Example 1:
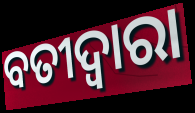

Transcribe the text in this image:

ବତୀଦ୍ୱାରା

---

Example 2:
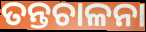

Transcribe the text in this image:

ତନ୍ତଚାଳନା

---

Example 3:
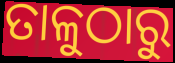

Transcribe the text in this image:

ତାଳୁଠାରୁ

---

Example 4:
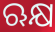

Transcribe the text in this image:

ଋକ୍ଷ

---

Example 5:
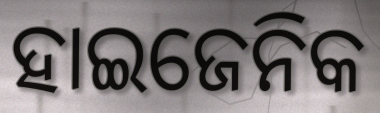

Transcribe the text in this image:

ହାଇଜେନିକ